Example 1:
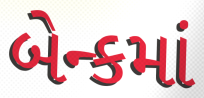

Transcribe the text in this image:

બેન્કમાં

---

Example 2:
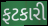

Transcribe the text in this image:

ફટકારી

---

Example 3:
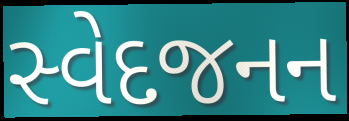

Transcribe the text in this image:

સ્વેદજનન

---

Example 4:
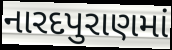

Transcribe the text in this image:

નારદપુરાણમાં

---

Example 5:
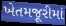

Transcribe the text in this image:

ખેતમજૂરીમાં